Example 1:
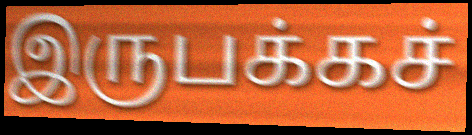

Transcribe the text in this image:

இருபக்கச்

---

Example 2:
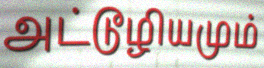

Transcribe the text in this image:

அட்டூழியமும்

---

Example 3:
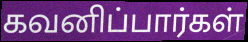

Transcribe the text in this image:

கவனிப்பார்கள்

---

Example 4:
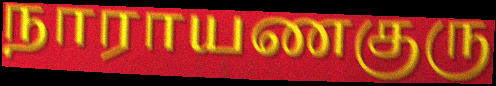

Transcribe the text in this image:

நாராயணகுரு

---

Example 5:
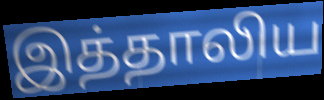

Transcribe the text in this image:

இத்தாலிய